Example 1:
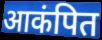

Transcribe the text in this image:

आकंपित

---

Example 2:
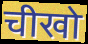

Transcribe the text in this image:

चीखो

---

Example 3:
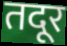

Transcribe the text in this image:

तदूर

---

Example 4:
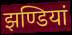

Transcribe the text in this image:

झण्डियां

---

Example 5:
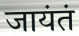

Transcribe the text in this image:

जायंतं